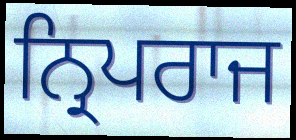
ਨ੍ਰਿਪਰਾਜ